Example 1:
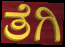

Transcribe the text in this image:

ತೆಗಿ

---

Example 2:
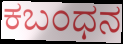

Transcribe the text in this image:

ಕಬಂಧನ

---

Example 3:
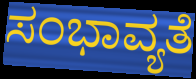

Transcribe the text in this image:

ಸಂಭಾವ್ಯತೆ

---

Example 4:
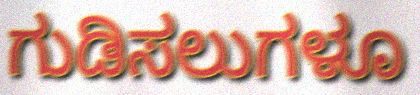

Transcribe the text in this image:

ಗುಡಿಸಲುಗಳೂ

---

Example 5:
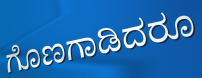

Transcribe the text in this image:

ಗೊಣಗಾಡಿದರೂ